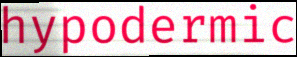
hypodermic